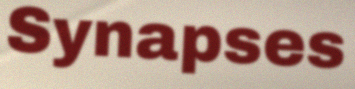
Synapses